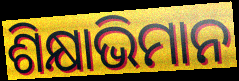
ଶିକ୍ଷାଭିମାନ